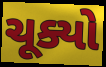
ચૂક્યો